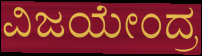
ವಿಜಯೇಂದ್ರ